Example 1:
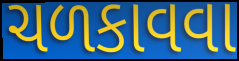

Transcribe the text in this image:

ચળકાવવા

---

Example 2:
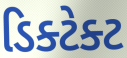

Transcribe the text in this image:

ડિક્ટેક્ટ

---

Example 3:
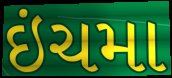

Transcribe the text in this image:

ઇંચમા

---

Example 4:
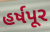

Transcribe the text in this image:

હર્ષપૂર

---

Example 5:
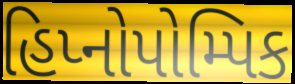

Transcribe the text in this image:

હિપ્નોપોમ્પિક